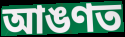
আঙণত